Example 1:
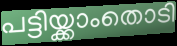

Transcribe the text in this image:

പട്ടിയ്ക്കാംതൊടി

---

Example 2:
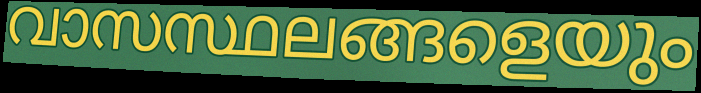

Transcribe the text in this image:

വാസസ്ഥലങ്ങളെയും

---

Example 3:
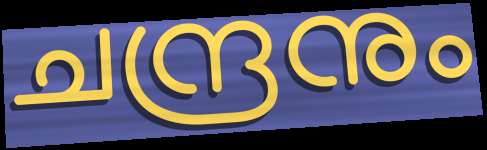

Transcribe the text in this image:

ചന്ദ്രനും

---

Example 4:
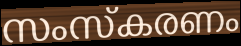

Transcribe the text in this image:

സംസ്‌കരണം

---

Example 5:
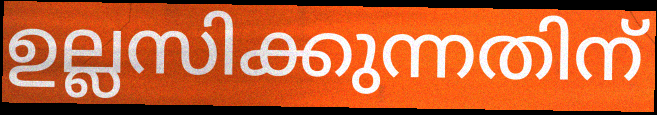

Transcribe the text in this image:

ഉല്ലസിക്കുന്നതിന്